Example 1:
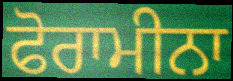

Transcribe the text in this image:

ਫੋਰਾਮੀਨਾ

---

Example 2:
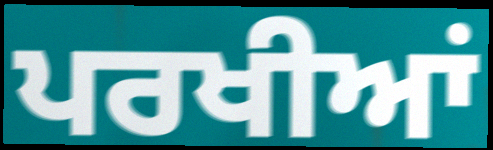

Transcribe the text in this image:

ਪਰਖੀਆਂ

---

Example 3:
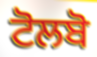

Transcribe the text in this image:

ਟੋਲਬੋ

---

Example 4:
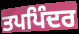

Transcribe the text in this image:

ਤਪਪਿੰਦਰ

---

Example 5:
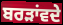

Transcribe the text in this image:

ਬਰੜਾਂਵਦੇ